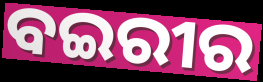
ବଇରୀର